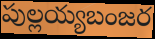
పుల్లయ్యబంజర